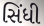
સિંધી